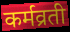
कर्मव्रती